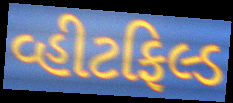
વ્હીટફિલ્ડ